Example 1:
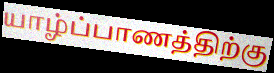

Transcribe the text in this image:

யாழ்ப்பாணத்திற்கு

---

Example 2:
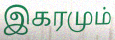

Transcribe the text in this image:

இகரமும்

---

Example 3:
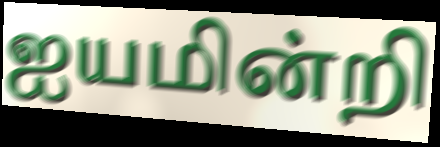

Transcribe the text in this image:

ஐயமின்றி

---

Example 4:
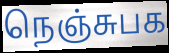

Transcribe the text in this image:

நெஞ்சுபக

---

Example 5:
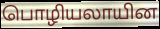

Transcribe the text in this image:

பொழியலாயின